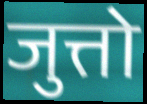
जुत्तो